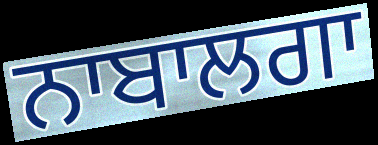
ਨਾਬਾਲਗਾ